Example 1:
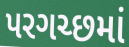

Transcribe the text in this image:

પરગચ્છમાં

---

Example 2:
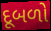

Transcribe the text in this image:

દૂબળો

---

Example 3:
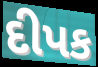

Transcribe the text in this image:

દીપક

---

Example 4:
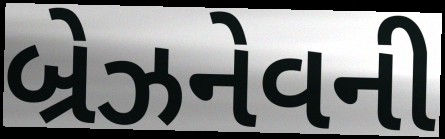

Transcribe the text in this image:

બ્રેઝનેવની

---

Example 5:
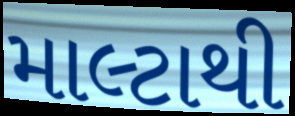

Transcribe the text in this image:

માલ્ટાથી